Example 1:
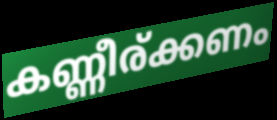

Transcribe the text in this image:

കണ്ണീര്ക്കണം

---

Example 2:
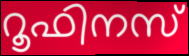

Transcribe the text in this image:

റൂഫിനസ്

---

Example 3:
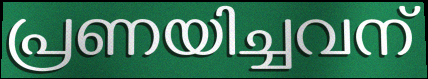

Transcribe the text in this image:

പ്രണയിച്ചവന്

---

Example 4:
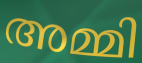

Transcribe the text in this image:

അമ്മി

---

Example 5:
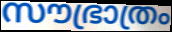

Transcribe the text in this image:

സൗഭ്രാത്രം